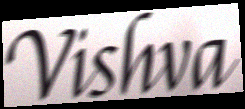
Vishva